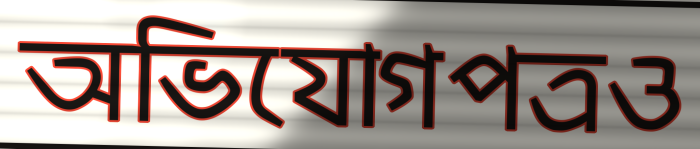
অভিযোগপত্রও